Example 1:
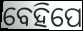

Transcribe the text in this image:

ବେହିପେ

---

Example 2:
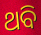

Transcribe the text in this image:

ଥବି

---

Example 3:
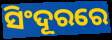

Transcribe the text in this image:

ସିଂଦୂରରେ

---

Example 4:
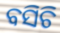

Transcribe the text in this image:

ବସିଚି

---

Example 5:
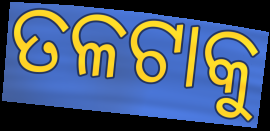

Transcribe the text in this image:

ତଳଟାକୁ